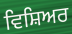
ਵਿਸ਼ਿਅਰ